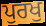
ਪੁਰਖੁ